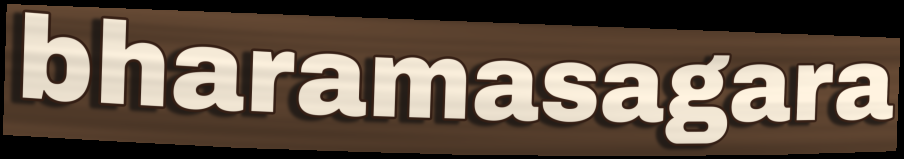
bharamasagara